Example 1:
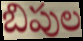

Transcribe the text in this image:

బిపుల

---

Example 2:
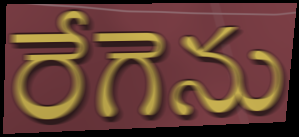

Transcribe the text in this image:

రేగెను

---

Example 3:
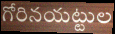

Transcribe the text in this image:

గోరినయట్టుల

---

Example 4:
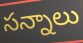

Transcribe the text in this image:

సన్నాలు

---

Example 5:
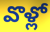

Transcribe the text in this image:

వొళ్లో